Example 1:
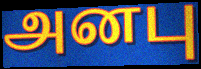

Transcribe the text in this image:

அனபு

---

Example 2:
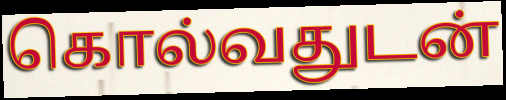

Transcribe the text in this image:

கொல்வதுடன்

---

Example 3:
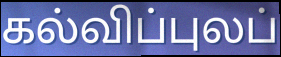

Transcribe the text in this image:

கல்விப்புலப்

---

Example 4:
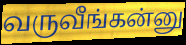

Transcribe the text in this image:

வருவீங்கன்னு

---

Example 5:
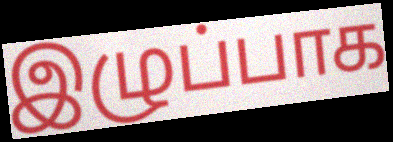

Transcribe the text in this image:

இழுப்பாக